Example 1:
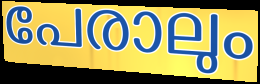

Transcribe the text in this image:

പേരാലും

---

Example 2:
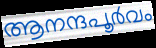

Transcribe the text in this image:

ആനന്ദപൂർവം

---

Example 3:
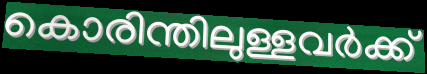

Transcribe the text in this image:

കൊരിന്തിലുള്ളവർക്ക്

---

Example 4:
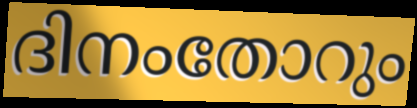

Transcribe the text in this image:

ദിനംതോറും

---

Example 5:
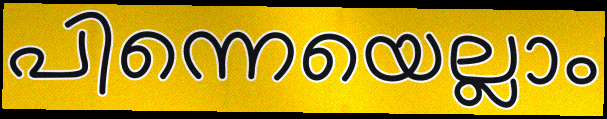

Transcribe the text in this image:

പിന്നെയെല്ലാം